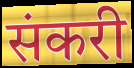
संकरी